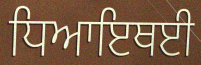
ਧਿਆਇਥਈ